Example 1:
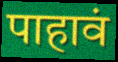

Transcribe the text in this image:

पाहावं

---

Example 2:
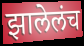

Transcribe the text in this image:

झालेलंच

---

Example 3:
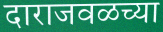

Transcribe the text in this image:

दाराजवळच्या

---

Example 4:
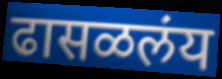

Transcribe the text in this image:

ढासळलंय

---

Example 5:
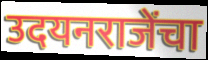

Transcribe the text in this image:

उदयनराजेंचा